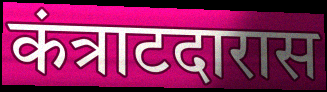
कंत्राटदारास